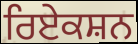
ਰਿਏਕਸ਼ਨ